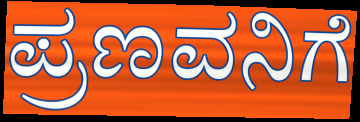
ಪ್ರಣವನಿಗೆ